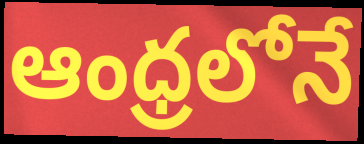
ఆంధ్రలోనే